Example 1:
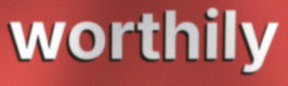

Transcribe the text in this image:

worthily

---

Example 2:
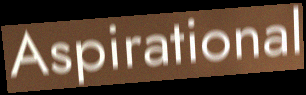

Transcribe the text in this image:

Aspirational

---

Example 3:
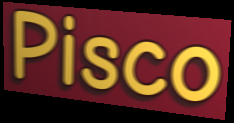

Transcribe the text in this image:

Pisco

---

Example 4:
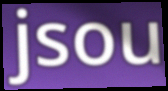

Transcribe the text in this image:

jsou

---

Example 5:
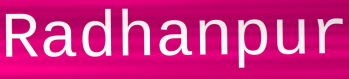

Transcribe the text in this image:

Radhanpur